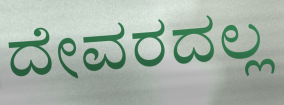
ದೇವರದಲ್ಲ